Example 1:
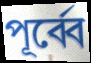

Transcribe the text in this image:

পূৰ্ব্বে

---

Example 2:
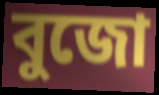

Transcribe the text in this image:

বুজো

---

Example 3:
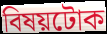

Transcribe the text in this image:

বিষয়টোক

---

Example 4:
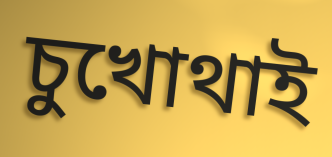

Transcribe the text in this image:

চুখোথাই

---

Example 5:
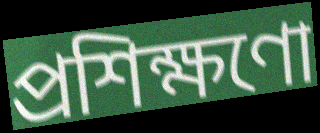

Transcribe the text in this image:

প্ৰশিক্ষণো